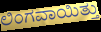
ಲಿಂಗವಾಯಿತ್ತು